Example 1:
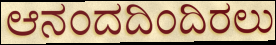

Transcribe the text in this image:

ಆನಂದದಿಂದಿರಲು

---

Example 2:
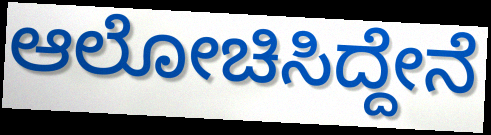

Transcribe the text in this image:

ಆಲೋಚಿಸಿದ್ದೇನೆ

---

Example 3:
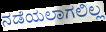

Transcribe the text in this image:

ನಡೆಯಲಾಗಲಿಲ್ಲ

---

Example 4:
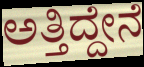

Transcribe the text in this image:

ಅತ್ತಿದ್ದೇನೆ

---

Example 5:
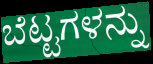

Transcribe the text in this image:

ಬೆಟ್ಟಗಳನ್ನು